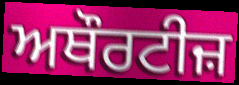
ਅਥੌਰਟੀਜ਼